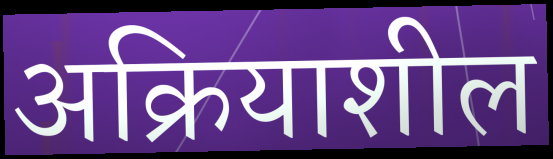
अक्रियाशील